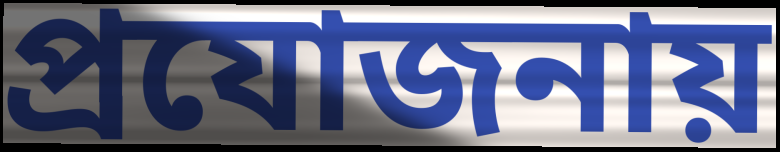
প্রযোজনায়